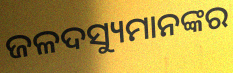
ଜଳଦସ୍ୟୁମାନଙ୍କର